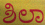
ಶಿಲಾ